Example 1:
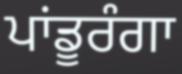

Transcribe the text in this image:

ਪਾਂਡੂਰੰਗਾ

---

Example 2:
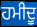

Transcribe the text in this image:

ਹਮੀਦੂ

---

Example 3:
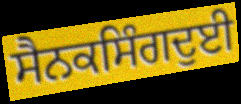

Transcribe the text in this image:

ਸੈਨਕਸਿੰਗਦੁਈ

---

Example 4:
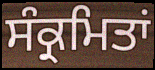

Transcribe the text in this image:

ਸੰਕ੍ਰਮਿਤਾਂ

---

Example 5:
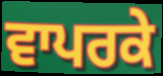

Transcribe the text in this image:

ਵਾਪਰਕੇ